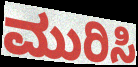
ಮುರಿಸಿ